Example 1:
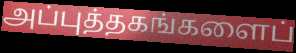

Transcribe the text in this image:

அப்புத்தகங்களைப்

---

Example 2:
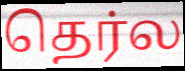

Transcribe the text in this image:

தெர்ல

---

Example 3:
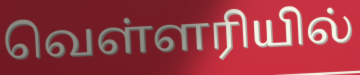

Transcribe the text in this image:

வெள்ளரியில்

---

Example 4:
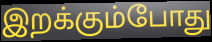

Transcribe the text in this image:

இறக்கும்போது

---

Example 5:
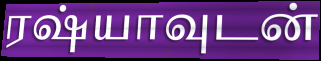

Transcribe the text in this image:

ரஷ்யாவுடன்